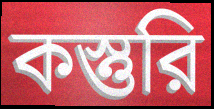
কস্তুরি